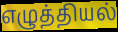
எழுத்தியல்